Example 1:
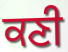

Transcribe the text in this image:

ਕਣੀ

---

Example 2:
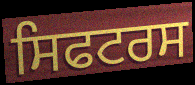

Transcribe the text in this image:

ਸਿਫਟਰਸ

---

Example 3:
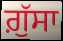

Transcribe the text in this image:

ਗ਼ੁੱਸਾ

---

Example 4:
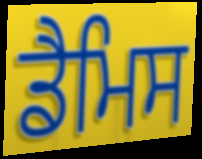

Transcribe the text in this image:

ਡੈਮਿਸ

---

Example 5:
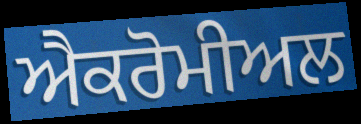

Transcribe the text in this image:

ਐਕਰੋਮੀਅਲ